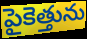
పైకెత్తును